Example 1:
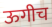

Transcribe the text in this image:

ऊगीच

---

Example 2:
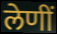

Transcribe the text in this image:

लेणीं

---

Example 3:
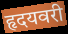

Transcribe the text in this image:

हृदयवरी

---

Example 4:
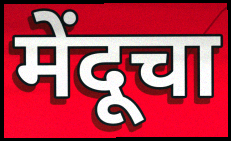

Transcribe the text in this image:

मेंदूचा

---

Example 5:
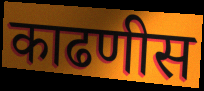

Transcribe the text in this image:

काढणीस